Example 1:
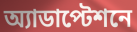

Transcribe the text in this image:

অ্যাডাপ্টেশনে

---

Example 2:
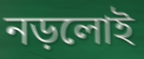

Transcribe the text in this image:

নড়লোই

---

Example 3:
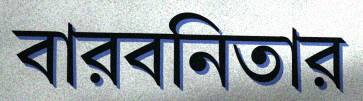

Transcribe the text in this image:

বারবনিতার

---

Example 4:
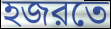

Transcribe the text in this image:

হজরতে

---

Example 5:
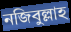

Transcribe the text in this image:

নজিবুল্লাহ